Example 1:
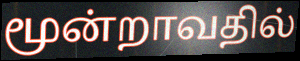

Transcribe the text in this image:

மூன்றாவதில்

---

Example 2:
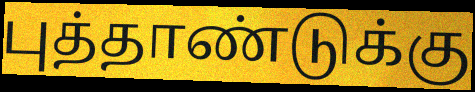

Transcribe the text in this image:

புத்தாண்டுக்கு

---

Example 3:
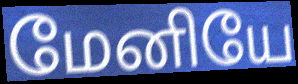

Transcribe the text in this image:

மேனியே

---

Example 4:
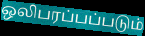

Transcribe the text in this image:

ஒலிபரப்பப்படும்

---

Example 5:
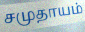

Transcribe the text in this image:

சமுதாயம்